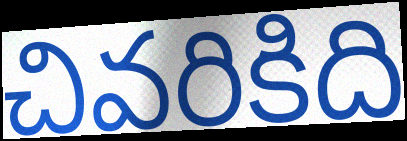
చివరికిది